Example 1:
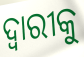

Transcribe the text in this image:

ଦ୍ଵାରୀକୁ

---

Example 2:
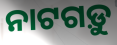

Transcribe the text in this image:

ନାଟଗଡ଼ୁ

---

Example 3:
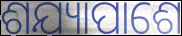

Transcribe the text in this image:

ଶଯ୍ୟାପାଶେ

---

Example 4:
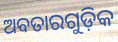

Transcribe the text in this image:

ଅବତାରଗୁଡ଼ିକ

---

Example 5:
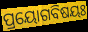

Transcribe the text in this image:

ପ୍ରୟୋଗବିଷୟଃ